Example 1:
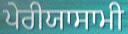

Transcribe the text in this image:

ਪੇਰੀਯਾਸਾਮੀ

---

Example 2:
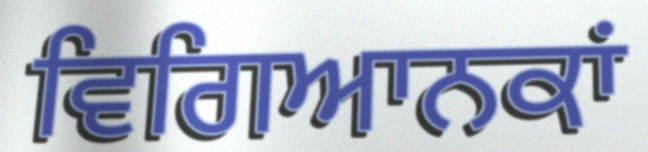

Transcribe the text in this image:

ਵਿਗਿਆਨਕਾਂ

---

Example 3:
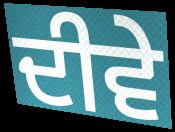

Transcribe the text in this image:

ਦੀਵੇ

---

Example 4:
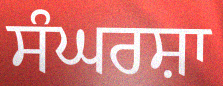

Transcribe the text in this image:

ਸੰਘਰਸ਼ਾ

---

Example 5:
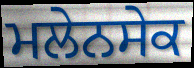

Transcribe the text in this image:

ਮਲੇਨਸੇਕ